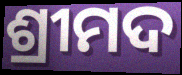
ଶ୍ରୀମଦ